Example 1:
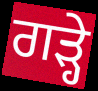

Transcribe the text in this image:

ਗੜ੍ਹੇ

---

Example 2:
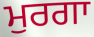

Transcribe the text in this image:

ਮੁਰਗਾ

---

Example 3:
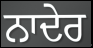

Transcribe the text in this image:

ਨਾਦੇਰ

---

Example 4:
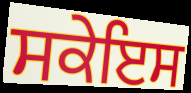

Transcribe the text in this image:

ਸਕੇਇਸ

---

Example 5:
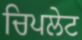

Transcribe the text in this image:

ਚਿਪਲੇਟ